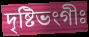
দৃষ্টিভংগীঃ